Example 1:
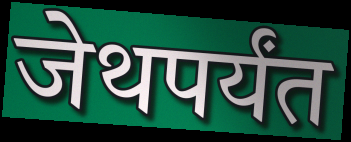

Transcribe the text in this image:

जेथपर्यंत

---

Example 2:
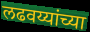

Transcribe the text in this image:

लढवय्यांच्या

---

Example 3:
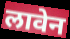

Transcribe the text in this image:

लावेन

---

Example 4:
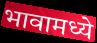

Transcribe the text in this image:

भावामध्ये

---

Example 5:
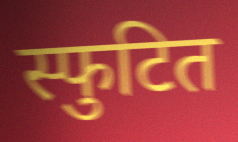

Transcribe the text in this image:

स्फुटित